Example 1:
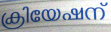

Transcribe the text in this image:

ക്രിയേഷന്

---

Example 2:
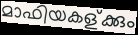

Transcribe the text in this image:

മാഫിയകള്ക്കും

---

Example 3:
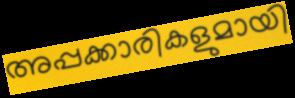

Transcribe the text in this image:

അപ്പക്കാരികളുമായി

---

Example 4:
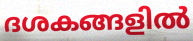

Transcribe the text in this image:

ദശകങ്ങളിൽ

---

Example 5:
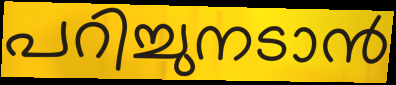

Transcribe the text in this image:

പറിച്ചുനടാൻ